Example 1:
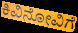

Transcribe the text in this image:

ಕಿವಿನೋವಿಗೆ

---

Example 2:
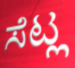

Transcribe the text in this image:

ಸೆಟ್ಲ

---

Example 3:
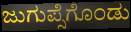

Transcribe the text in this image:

ಜುಗುಪ್ಸೆಗೊಂಡು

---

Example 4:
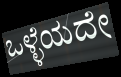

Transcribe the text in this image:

ಒಳ್ಳೆಯದೇ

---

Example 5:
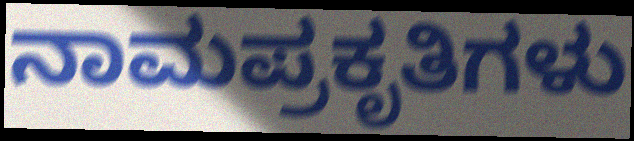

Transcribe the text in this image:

ನಾಮಪ್ರಕೃತಿಗಳು